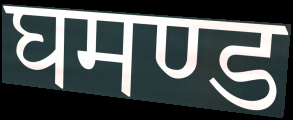
घमण्ड